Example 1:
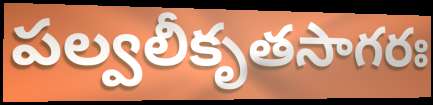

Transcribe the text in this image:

పల్వలీకృతసాగరః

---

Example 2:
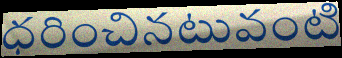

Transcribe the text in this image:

ధరించినటువంటి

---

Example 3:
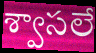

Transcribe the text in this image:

శ్వాసలే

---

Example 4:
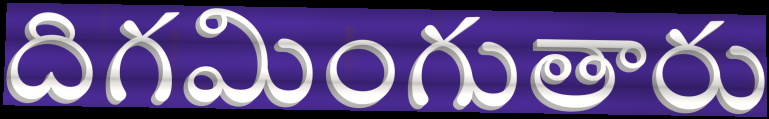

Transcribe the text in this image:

దిగమింగుతారు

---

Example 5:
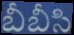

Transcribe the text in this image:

బీబీసి